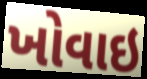
ખોવાઇ